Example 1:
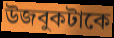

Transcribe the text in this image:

উজবুকটাকে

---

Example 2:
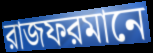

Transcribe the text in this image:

রাজফরমানে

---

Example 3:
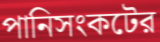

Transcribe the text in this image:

পানিসংকটের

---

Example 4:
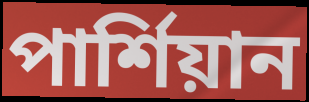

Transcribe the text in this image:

পার্শিয়ান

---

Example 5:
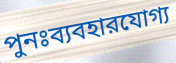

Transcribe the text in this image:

পুনঃব্যবহারযোগ্য